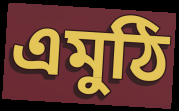
এমুঠি